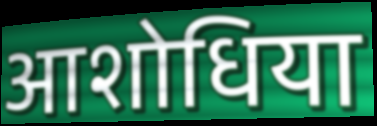
आशोधिया